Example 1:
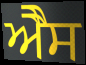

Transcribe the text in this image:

ਐੈਸ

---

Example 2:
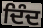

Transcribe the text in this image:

ਦਿੰਦ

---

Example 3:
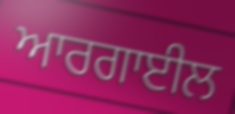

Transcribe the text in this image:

ਆਰਗਾਈਲ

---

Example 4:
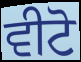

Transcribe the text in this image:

ਵੀਟੋ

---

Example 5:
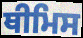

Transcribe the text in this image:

ਥੀਮਿਸ